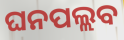
ଘନପଲ୍ଲବ